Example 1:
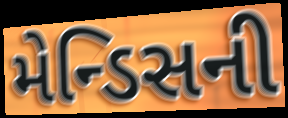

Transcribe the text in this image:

મેન્ડિસની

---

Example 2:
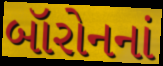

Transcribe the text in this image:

બૉરોનનાં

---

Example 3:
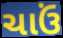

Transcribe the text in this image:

ચાઉં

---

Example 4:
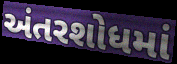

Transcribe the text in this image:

અંતરશોધમાં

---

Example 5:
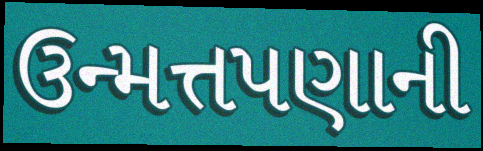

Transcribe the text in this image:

ઉન્મત્તપણાની